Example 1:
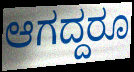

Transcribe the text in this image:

ಆಗದ್ದರೂ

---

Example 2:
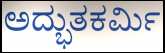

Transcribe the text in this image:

ಅದ್ಭುತಕರ್ಮಿ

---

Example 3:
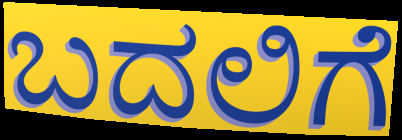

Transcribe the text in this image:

ಬದಲಿಗೆ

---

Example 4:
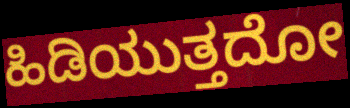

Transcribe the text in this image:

ಹಿಡಿಯುತ್ತದೋ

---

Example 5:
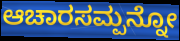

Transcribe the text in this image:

ಆಚಾರಸಮ್ಪನ್ನೋ